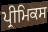
ਪ੍ਰੀਮਿਕਸ